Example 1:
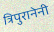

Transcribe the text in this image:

त्रिपुरानेनी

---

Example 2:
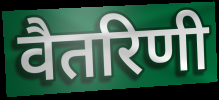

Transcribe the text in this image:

वैतरिणी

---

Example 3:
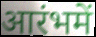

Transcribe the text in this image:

आरंभमें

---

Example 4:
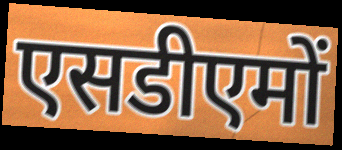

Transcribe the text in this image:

एसडीएमों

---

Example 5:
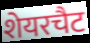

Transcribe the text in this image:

शेयरचैट